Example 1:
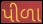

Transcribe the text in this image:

પીળા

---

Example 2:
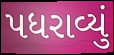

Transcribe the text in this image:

પધરાવ્યું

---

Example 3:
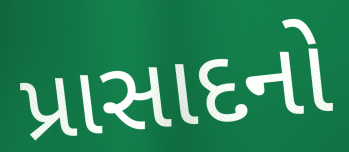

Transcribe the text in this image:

પ્રાસાદનો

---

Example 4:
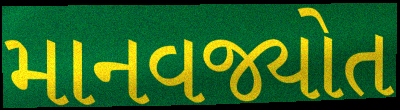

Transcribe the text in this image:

માનવજ્યોત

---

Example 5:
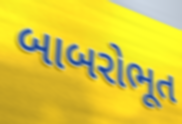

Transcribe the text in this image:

બાબરોભૂત